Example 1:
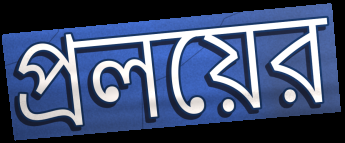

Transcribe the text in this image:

প্রলয়ের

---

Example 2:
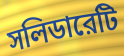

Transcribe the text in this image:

সলিডারেটি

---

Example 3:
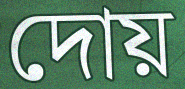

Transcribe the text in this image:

দোয়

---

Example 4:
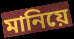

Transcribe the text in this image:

মানিয়ে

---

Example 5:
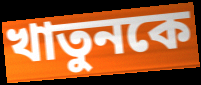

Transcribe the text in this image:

খাতুনকে